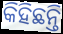
କିହିଛନ୍ତି